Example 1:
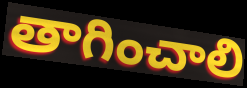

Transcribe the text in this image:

తాగించాలి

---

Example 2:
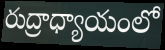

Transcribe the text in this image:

రుద్రాధ్యాయంలో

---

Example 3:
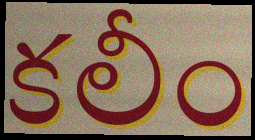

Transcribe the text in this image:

కలీం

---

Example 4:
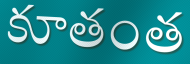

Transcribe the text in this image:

కూతంత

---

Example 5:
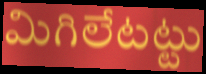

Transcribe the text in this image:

మిగిలేటట్టు